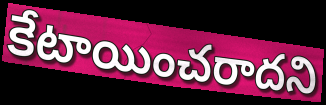
కేటాయించరాదని